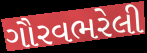
ગૌરવભરેલી